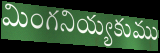
మింగనియ్యకుము